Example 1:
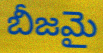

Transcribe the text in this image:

బీజమై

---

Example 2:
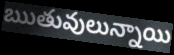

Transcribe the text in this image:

ఋతువులున్నాయి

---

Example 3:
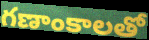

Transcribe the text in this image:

గణాంకాలతో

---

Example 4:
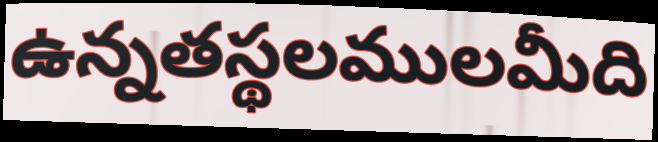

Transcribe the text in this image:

ఉన్నతస్థలములమీది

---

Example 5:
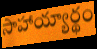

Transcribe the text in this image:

సాహాయ్యార్థం